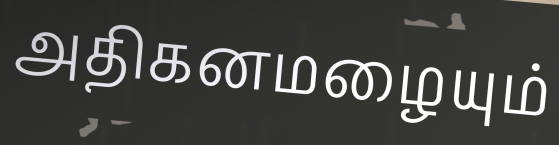
அதிகனமழையும்